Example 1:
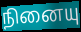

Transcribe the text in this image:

நினையு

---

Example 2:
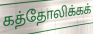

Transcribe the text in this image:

கத்தோலிக்கக்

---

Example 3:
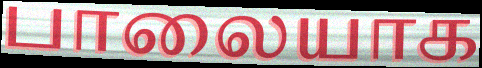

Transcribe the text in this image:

பாலையாக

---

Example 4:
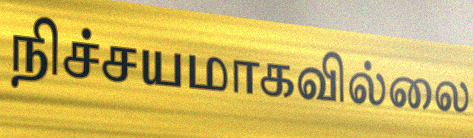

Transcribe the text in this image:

நிச்சயமாகவில்லை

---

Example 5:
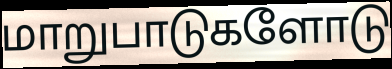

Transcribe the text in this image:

மாறுபாடுகளோடு